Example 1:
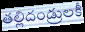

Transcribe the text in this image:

తల్లిదండ్రులకీ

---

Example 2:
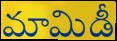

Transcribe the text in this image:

మామిడీ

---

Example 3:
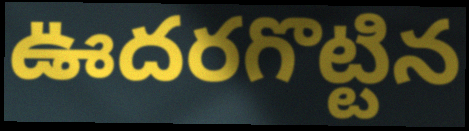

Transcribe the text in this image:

ఊదరగొట్టిన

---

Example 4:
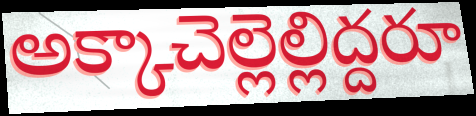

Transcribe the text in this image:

అక్కాచెల్లెల్లిద్దరూ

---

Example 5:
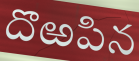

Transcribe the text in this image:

దొఱపిన